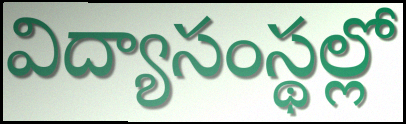
విద్యాసంస్థల్లో